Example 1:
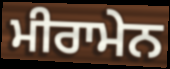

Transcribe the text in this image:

ਮੀਰਾਮੇਨ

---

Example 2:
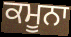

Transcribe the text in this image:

ਕਮੂਨਾ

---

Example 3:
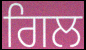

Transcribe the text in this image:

ਗਿਲ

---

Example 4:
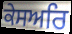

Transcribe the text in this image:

ਕੇਸਅਰਿ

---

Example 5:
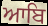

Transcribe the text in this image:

ਆਬਿ